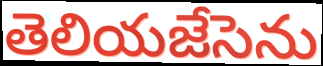
తెలియజేసెను